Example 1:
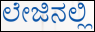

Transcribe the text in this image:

ಲೇಜಿನಲ್ಲಿ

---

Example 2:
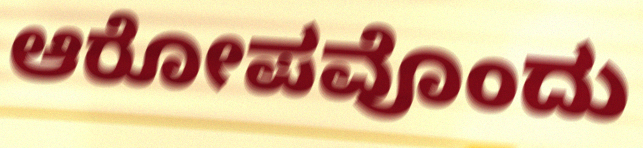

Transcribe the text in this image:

ಆರೋಪವೊಂದು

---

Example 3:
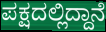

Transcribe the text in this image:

ಪಕ್ಷದಲ್ಲಿದ್ದಾನೆ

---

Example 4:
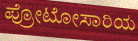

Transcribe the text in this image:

ಪ್ರೋಟೋಸಾರಿಯ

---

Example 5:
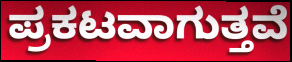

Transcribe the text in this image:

ಪ್ರಕಟವಾಗುತ್ತವೆ